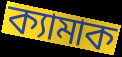
ক্যামাক